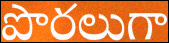
పొరలుగా